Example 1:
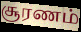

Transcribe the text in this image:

சூரணம்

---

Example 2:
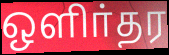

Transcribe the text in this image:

ஒளிர்தர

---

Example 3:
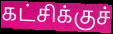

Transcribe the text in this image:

கட்சிக்குச்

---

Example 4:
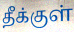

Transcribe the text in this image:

தீக்குள்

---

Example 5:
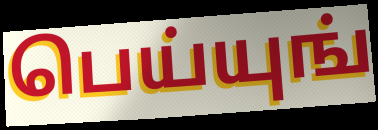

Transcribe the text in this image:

பெய்யுங்